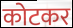
कोटकर